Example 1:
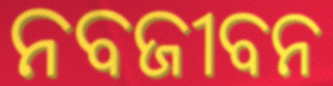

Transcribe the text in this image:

ନବଜୀବନ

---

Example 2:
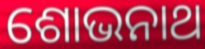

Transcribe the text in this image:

ଶୋଭନାଥ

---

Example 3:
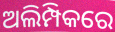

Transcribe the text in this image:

ଅଲିମ୍ପିକରେ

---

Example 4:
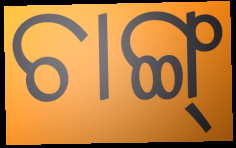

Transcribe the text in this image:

ଚାଙ୍ଗ୍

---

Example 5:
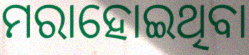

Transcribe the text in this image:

ମରାହୋଇଥିବା